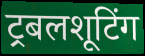
ट्रबलशूटिंग